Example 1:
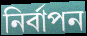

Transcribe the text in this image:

নির্বাপন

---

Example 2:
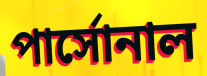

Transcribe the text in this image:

পার্সোনাল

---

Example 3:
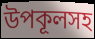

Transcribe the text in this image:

উপকূলসহ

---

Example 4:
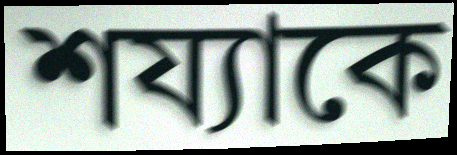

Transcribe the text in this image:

শয্যাকে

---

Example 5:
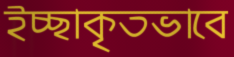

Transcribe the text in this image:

ইচ্ছাকৃতভাবে